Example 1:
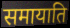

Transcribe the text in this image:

समायाति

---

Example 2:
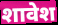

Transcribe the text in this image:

शावेश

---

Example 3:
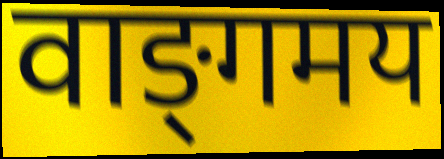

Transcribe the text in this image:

वाङ्गमय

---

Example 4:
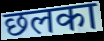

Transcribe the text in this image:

छलका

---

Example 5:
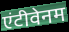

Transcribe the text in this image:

एंटीवेनम